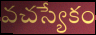
వచస్యేకం